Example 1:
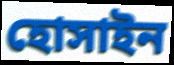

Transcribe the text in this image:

হোসাইন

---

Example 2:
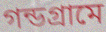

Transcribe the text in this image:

গন্ডগ্রামে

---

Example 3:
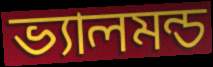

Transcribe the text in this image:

ভ্যালমন্ড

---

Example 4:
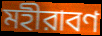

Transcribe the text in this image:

মহীরাবণ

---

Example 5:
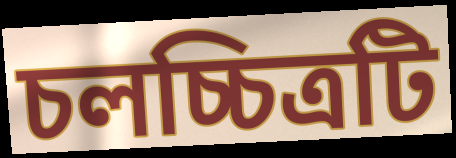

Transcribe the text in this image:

চলচ্চিত্রটি